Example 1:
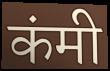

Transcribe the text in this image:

कंमी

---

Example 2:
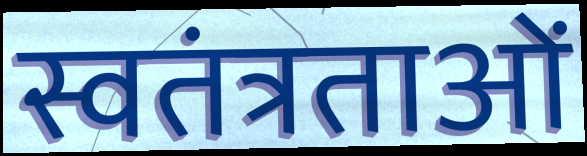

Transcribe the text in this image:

स्वतंत्रताओं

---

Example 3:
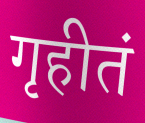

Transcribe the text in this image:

गृहीतं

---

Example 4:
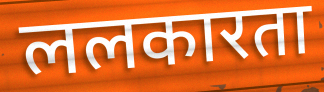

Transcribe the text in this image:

ललकारता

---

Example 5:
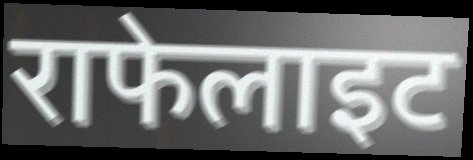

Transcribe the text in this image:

राफेलाइट